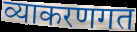
व्याकरणगत